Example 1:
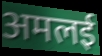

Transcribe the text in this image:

अमलई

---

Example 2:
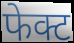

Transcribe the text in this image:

फेक्ट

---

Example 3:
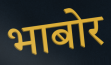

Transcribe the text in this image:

भाबोर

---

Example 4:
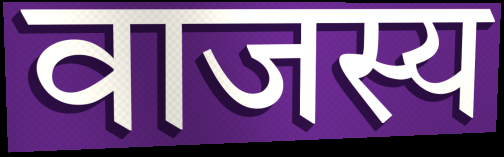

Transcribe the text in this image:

वाजस्य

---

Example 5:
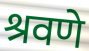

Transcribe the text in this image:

श्रवणे